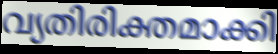
വ്യതിരിക്തമാക്കി